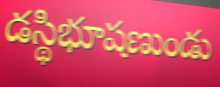
డస్థిభూషణుండు